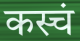
कस्चं